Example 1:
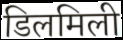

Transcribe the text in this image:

डिलमिली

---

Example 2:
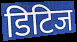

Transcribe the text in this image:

डिटिज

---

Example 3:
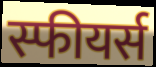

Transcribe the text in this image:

स्फीयर्स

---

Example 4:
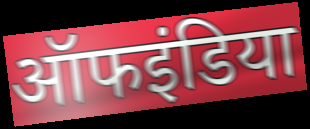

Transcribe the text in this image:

ऑफइंडिया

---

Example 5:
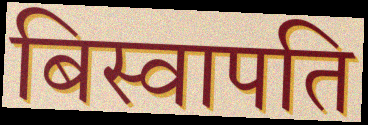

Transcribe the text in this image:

बिस्वापति